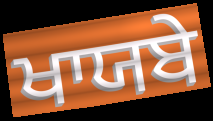
ਖਾਯਬੇ